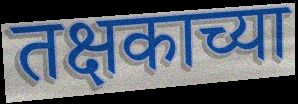
तक्षकाच्या